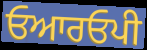
ਓਆਰਓਪੀ